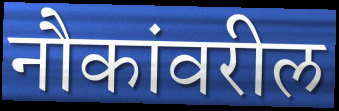
नौकांवरील